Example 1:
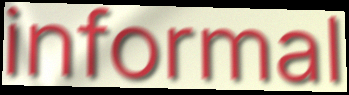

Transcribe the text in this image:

informal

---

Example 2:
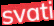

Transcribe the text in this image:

svati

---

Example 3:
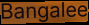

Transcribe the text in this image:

Bangalee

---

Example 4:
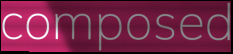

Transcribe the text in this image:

composed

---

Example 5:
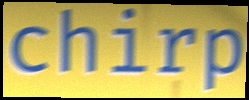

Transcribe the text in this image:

chirp